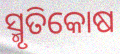
ସ୍ମୃତିକୋଷ